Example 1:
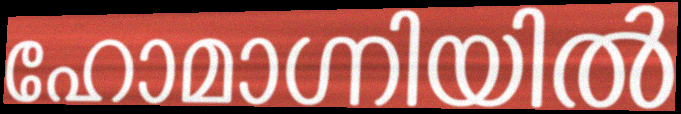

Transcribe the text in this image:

ഹോമാഗ്നിയിൽ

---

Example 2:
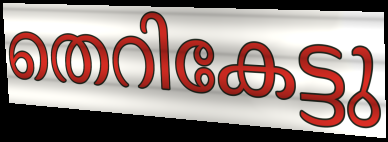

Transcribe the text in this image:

തെറികേട്ടു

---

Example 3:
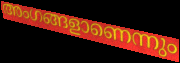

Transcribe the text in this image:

അംഗങ്ങളാണെന്നും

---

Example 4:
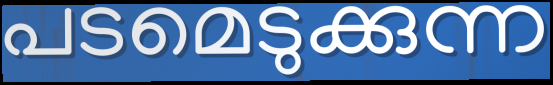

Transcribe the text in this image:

പടമെടുക്കുന്ന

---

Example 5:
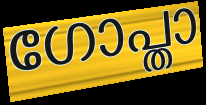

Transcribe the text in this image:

ഗോപ്താ